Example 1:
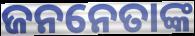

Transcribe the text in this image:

ଜନନେତାଙ୍କ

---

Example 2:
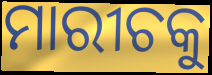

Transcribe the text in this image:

ମାରୀଚକୁ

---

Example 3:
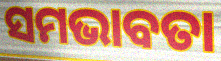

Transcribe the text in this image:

ସମଭାବତା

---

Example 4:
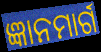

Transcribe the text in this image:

ଜ୍ଞାନମାର୍ଗ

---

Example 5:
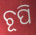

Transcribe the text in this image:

ଚୂପି